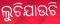
ଲୁଚିଯାଉଚି